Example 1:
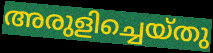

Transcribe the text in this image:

അരുളിച്ചെയ്തു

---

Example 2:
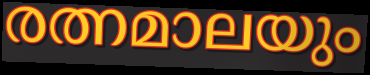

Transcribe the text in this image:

രത്നമാലയും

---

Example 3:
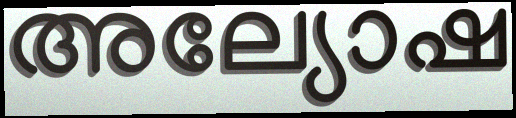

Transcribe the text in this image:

അല്യോഷ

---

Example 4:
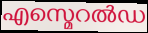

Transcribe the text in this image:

എസ്മെറൽഡ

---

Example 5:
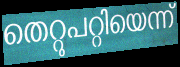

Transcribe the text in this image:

തെറ്റുപറ്റിയെന്ന്